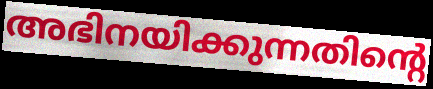
അഭിനയിക്കുന്നതിന്റെ